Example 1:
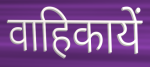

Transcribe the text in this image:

वाहिकायें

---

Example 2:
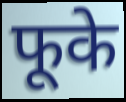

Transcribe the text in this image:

फूके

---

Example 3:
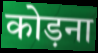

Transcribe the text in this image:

कोड़ना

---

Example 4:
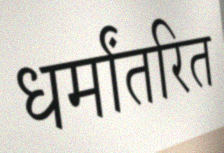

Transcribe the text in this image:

धर्मांतरित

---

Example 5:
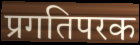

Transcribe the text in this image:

प्रगतिपरक